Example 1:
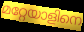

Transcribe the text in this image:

മറ്റേയാളിനെ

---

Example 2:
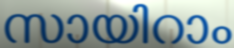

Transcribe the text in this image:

സായിറാം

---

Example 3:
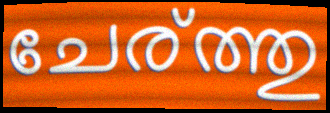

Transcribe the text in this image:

ചേര്ത്തു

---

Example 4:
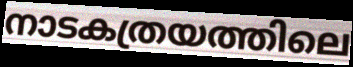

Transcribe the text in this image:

നാടകത്രയത്തിലെ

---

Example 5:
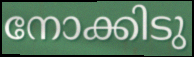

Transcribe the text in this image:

നോക്കിടു